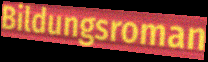
Bildungsroman